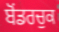
ਬੋਂਡਰਚੁਕ